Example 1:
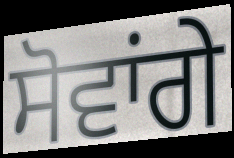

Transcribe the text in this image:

ਸੋਵਾਂਗੇ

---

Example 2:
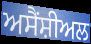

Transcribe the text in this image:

ਅਸੈਂਸ਼ੀਅਲ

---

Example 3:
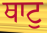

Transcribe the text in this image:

ਥਾਟੁ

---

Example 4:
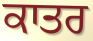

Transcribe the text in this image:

ਕਾਤਰ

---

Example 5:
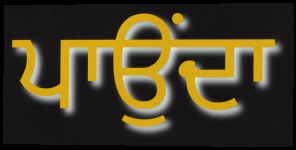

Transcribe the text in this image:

ਪਾਉਂਦਾ